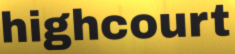
highcourt